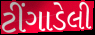
ટીંગાડેલી